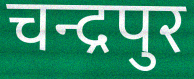
चन्द्रपुर